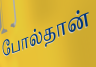
போல்தான்